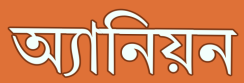
অ্যানিয়ন